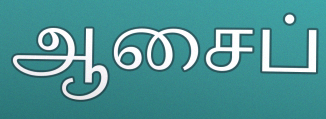
ஆசைப்